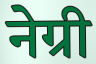
नेग्री